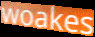
woakes